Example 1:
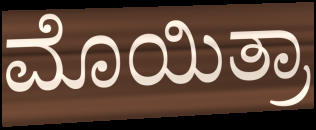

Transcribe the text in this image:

ಮೊಯಿತ್ರಾ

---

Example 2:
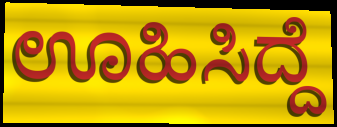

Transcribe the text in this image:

ಊಹಿಸಿದ್ದೆ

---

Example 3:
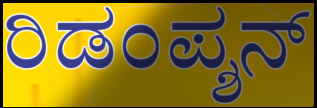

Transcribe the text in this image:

ರಿಡಂಪ್ಶನ್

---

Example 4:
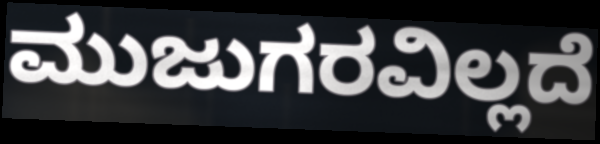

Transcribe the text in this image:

ಮುಜುಗರವಿಲ್ಲದೆ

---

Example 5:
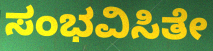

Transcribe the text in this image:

ಸಂಭವಿಸಿತೇ